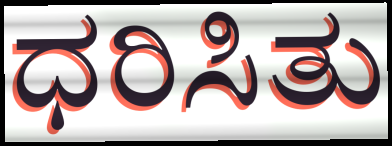
ಧರಿಸಿತು